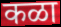
कळा